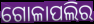
ଗୋଳାପଲିର